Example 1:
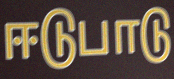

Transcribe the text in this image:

ஈடுபாடு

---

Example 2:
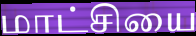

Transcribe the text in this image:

மாட்சியை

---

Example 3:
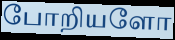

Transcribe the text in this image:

போறியளோ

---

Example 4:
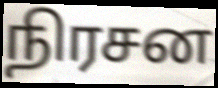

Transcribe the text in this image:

நிரசன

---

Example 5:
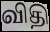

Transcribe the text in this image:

விதி